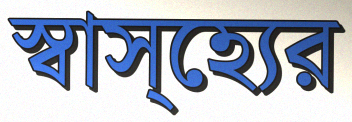
স্বাস্হ্যের